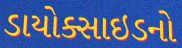
ડાયોક્સાઇડનો